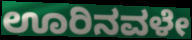
ಊರಿನವಳೇ